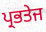
ਪ੍ਰਭਤੇਜ